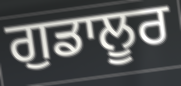
ਗੁਡਾਲੂਰ